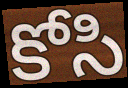
కోసి